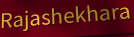
Rajashekhara